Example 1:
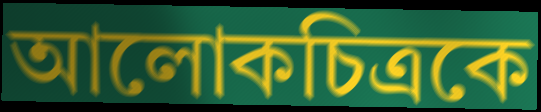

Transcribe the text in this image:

আলোকচিত্রকে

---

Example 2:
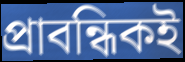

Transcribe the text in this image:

প্রাবন্ধিকই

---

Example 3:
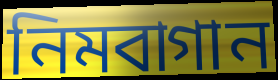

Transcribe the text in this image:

নিমবাগান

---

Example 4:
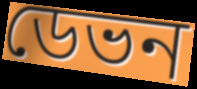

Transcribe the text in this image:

ডেভন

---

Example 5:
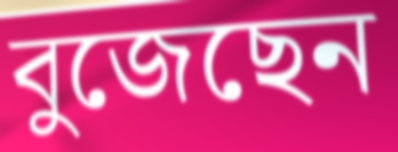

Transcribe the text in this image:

বুজেছেন